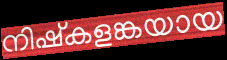
നിഷ്കളങ്കയായ